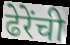
ढेरेंची